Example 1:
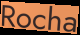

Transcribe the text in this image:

Rocha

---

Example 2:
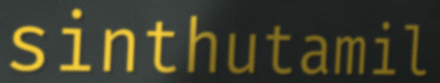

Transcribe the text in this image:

sinthutamil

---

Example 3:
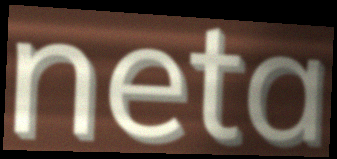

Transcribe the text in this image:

neta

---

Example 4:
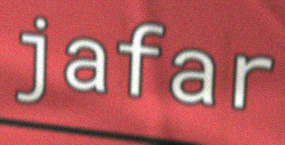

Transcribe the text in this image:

jafar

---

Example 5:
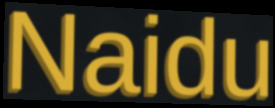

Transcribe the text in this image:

Naidu